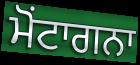
ਮੋਂਟਾਗਨਾ